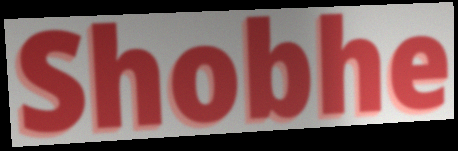
Shobhe